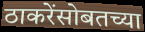
ठाकरेंसोबतच्या